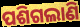
ପଶିଗଲାଣି